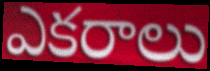
ఎకరాలు